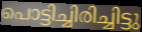
പൊട്ടിച്ചിരിച്ചിട്ടു